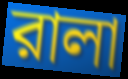
রালা